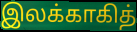
இலக்காகித்